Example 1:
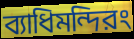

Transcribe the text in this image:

ব্যাধিমন্দিরং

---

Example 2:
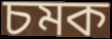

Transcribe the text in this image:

চমক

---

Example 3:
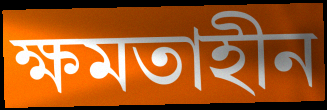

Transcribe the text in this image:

ক্ষমতাহীন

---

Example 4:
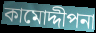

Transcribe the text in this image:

কামোদ্দীপনা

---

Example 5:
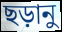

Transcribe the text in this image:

ছড়ানু